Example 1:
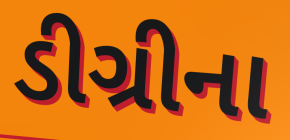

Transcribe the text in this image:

ડીગ્રીના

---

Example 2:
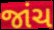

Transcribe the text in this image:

જાંચ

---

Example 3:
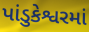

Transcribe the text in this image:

પાંડુકેશ્વરમાં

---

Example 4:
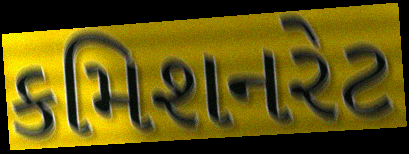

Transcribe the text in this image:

કમિશનરેટ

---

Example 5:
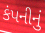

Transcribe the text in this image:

કંપનીનું